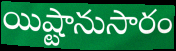
యిష్టానుసారం